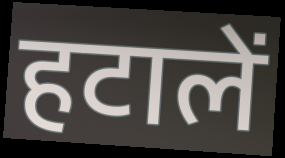
हटालें